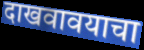
दाखवावयाचा